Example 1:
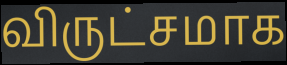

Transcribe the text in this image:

விருட்சமாக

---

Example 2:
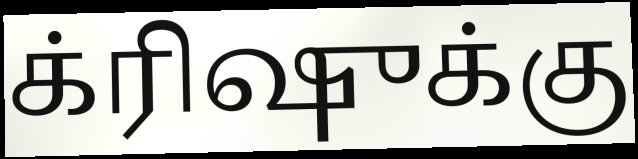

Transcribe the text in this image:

க்ரிஷுக்கு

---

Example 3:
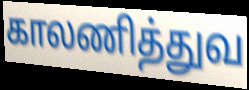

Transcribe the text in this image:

காலணித்துவ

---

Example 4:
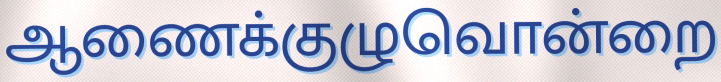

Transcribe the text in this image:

ஆணைக்குழுவொன்றை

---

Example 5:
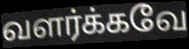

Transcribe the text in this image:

வளர்க்கவே